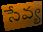
సేవ్య